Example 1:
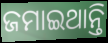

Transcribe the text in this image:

ଜମାଇଥାନ୍ତି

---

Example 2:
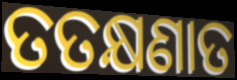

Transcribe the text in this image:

ତତକ୍ଷଣାତ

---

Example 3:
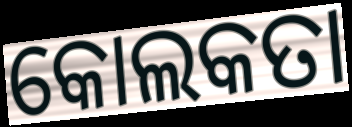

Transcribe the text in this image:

କୋଲକତା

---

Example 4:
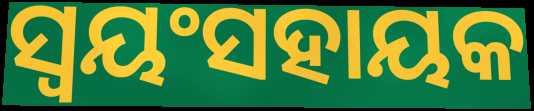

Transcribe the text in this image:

ସ୍ଵୟଂସହାୟକ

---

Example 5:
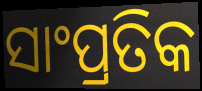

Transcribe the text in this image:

ସାଂପ୍ରତିକ